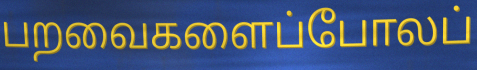
பறவைகளைப்போலப்